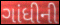
ગાંધીની